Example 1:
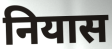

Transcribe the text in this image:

नियास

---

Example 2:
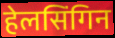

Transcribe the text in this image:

हेलसिंगिन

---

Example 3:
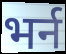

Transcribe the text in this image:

भर्न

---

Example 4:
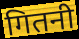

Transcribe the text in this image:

गितनी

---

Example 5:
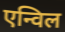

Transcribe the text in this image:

एन्विल